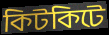
কিটকিটে